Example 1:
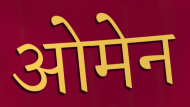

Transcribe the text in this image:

ओमेन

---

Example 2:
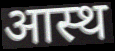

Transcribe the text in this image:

आस्थ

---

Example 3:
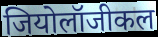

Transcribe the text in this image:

जियोलॉजीकल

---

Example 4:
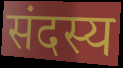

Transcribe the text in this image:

संदस्य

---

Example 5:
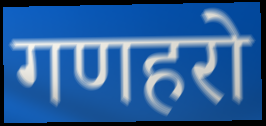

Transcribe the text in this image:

गणहरो